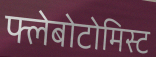
फ्लेबोटोमिस्ट